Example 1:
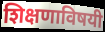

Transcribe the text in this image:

शिक्षणाविषयी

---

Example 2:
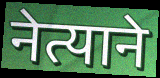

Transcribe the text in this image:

नेत्याने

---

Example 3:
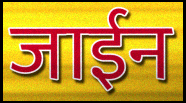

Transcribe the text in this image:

जाईन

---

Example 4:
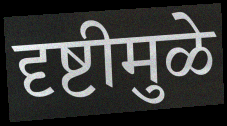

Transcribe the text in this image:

दृष्टीमुळे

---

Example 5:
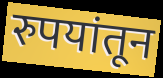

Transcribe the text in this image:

रुपयांतून